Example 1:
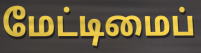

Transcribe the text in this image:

மேட்டிமைப்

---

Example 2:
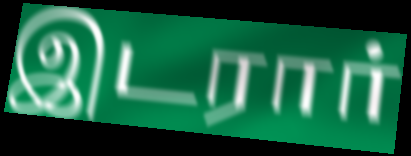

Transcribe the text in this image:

இடரார்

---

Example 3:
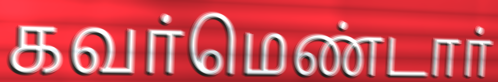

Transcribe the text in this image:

கவர்மெண்டார்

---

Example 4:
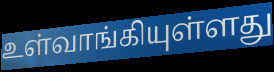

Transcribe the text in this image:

உள்வாங்கியுள்ளது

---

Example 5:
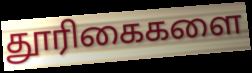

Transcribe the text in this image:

தூரிகைகளை